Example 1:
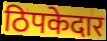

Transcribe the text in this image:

ठिपकेदार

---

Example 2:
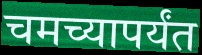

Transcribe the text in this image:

चमच्यापर्यंत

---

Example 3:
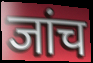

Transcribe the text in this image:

जांच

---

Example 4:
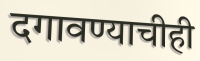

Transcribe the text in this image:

दगावण्याचीही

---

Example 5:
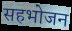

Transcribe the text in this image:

सहभोजन